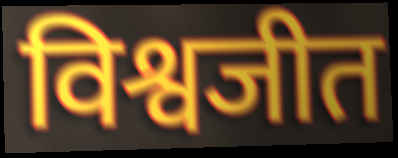
विश्वजीत